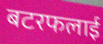
बटरफलाई